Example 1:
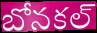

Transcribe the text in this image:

బోనకల్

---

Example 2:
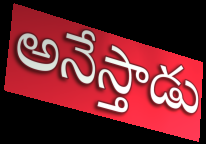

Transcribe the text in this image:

అనేస్తాడు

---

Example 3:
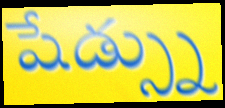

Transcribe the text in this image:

షేడ్స్ను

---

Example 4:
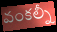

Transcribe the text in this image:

వంకల్నీ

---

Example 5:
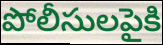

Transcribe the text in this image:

పోలీసులపైకి